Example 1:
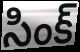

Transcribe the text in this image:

సింక్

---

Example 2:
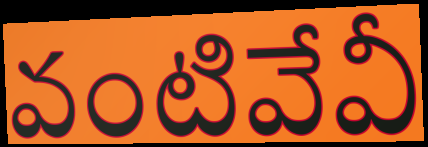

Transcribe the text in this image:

వంటివేవీ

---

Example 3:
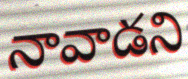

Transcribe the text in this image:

నావాడని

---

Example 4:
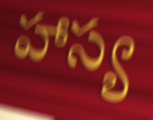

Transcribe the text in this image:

హాస్య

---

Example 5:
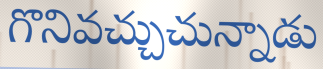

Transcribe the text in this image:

గొనివచ్చుచున్నాడు